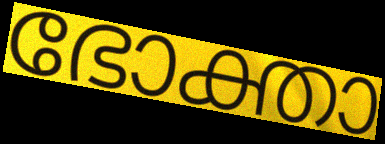
ഭോക്താ